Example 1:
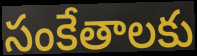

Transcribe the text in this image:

సంకేతాలకు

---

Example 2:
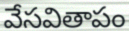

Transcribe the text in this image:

వేసవితాపం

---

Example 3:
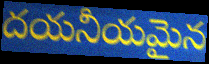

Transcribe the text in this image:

దయనీయమైన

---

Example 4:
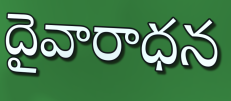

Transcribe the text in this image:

దైవారాధన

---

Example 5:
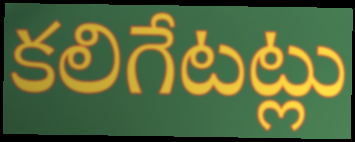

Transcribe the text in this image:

కలిగేటట్లు